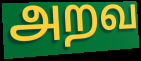
அறவ